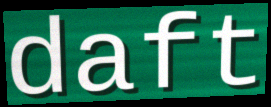
daft